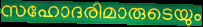
സഹോദരിമാരുടെയും